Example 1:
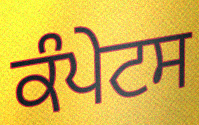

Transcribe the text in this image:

ਕੰਪੇਟਸ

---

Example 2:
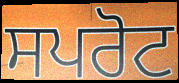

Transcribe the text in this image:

ਸਪਰੋਟ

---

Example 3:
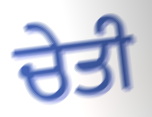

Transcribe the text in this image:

ਚੇਤੀ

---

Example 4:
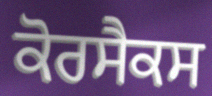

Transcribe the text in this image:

ਕੋਰਸੈਕਸ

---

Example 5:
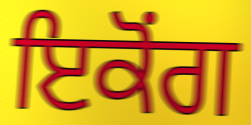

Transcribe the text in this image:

ਇਕੋਂਗ